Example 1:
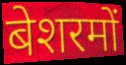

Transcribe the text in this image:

बेशरमों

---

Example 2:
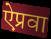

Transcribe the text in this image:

ऐप्रवा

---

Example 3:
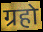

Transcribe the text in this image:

ग्रहो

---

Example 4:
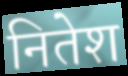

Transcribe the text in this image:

नितेश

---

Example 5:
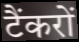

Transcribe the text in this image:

टैंकरों